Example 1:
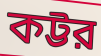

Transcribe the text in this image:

কট্টর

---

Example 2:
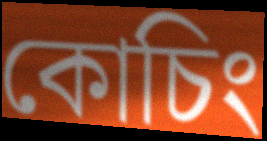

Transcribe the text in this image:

কোচিং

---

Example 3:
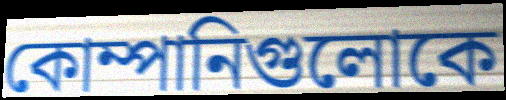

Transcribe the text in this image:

কোম্পানিগুলোকে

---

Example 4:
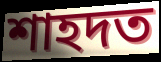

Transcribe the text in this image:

শাহদত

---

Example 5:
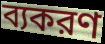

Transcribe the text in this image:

ব্যকরণ